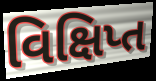
વિક્ષિપ્ત